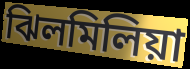
ঝিলমিলিয়া